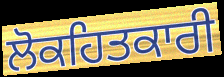
ਲੋਕਹਿਤਕਾਰੀ